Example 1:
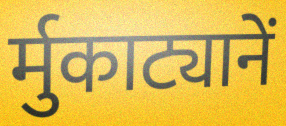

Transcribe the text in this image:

र्मुकाट्यानें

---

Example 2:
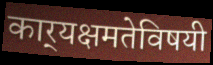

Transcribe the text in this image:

कार्यक्षमतेविषयी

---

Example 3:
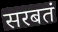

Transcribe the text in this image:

सरबतं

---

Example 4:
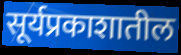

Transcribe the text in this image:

सूर्यप्रकाशातील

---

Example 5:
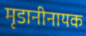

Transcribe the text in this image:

मृडानीनायक